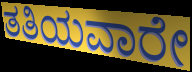
ತತಿಯವಾರೇ